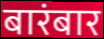
बारंबार